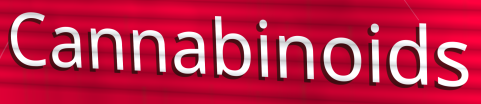
Cannabinoids